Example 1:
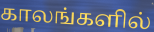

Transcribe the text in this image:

காலங்களில்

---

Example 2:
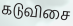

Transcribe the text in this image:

கடுவிசை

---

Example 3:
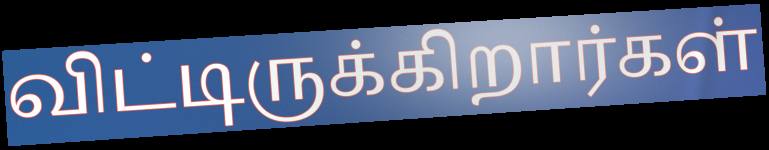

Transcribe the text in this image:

விட்டிருக்கிறார்கள்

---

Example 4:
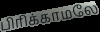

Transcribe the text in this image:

பிரிக்காமலே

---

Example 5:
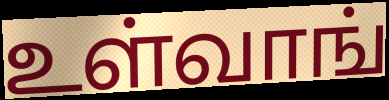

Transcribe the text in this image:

உள்வாங்